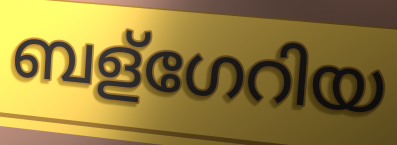
ബള്ഗേറിയ